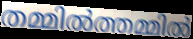
തമ്മിൽത്തമ്മിൽ